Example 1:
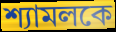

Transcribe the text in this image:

শ্যামলকে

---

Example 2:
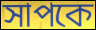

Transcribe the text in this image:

সাপকে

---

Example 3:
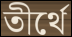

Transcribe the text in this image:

তীর্থে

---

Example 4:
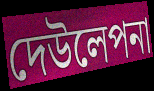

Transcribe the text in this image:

দেউলেপনা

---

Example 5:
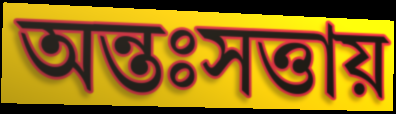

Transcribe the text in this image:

অন্তঃসত্তায়